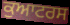
ਕੁਆਟਰਸ